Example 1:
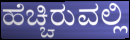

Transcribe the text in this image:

ಹೆಚ್ಚಿರುವಲ್ಲಿ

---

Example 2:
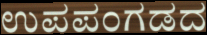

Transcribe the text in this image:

ಉಪಪಂಗಡದ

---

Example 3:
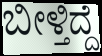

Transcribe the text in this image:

ಬೀಳ್ತಿದ್ದೆ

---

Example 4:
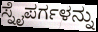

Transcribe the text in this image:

ಸ್ನೈಪರ್ಗಳನ್ನು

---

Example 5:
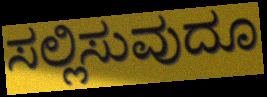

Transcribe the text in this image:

ಸಲ್ಲಿಸುವುದೂ